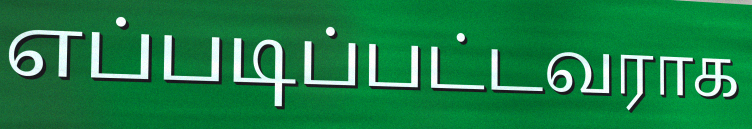
எப்படிப்பட்டவராக